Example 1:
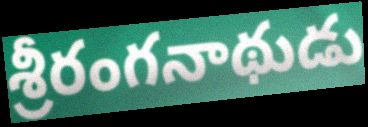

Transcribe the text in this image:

శ్రీరంగనాథుడు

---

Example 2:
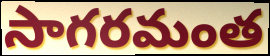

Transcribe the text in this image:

సాగరమంత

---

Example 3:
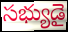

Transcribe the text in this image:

సభ్యుడై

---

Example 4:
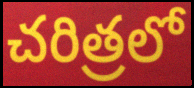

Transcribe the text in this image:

చరిత్రలో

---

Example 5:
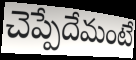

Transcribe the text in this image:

చెప్పేదేమంటే